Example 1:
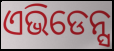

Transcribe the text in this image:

ଏଭିଡେନ୍ସ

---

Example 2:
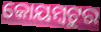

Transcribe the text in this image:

କୋୟମ୍ବଟୁର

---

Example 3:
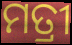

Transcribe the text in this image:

ମତ୍ରୀ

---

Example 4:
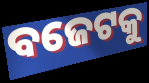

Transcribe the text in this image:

ବଜେଟକୁ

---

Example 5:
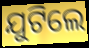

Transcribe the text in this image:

ଯୁଟିଲେ